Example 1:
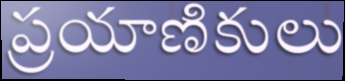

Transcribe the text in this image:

ప్రయాణికులు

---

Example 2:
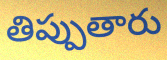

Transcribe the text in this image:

తిప్పుతారు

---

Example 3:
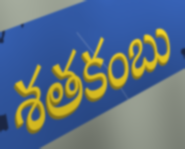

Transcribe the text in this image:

శతకంబు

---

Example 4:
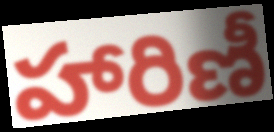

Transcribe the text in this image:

హారిణీ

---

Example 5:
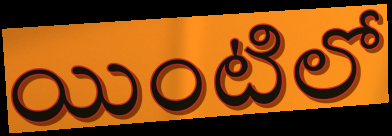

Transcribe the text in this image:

యింటిలో